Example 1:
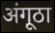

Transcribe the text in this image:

अंगूठा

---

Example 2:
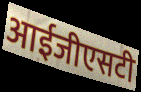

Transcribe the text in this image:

आईजीएसटी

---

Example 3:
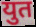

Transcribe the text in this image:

युत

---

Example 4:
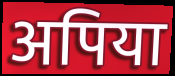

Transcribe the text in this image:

अपिया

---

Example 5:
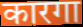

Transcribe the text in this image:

कारगा